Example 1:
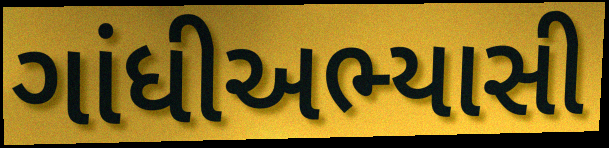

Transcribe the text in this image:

ગાંધીઅભ્યાસી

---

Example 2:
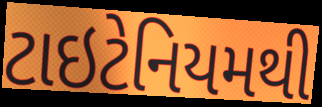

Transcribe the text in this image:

ટાઇટેનિયમથી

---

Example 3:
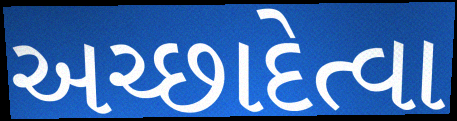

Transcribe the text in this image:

અચ્છાદેત્વા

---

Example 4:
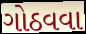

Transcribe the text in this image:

ગોઠવવા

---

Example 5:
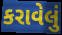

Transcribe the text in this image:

કરાવેલું